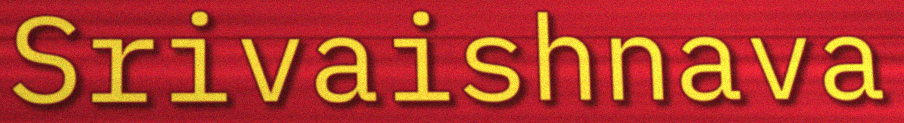
Srivaishnava